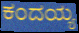
ಕಂದಯ್ಯ